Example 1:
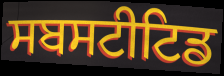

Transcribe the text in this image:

ਸਬਸਟੀਟਿਡ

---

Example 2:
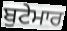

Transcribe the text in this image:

ਬੁਟੇਮਾਰ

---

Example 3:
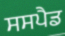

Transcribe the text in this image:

ਸਸਪੈਡ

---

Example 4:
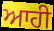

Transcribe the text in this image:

ਆਹੀ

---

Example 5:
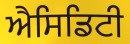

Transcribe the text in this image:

ਐਸਿਡਿਟੀ